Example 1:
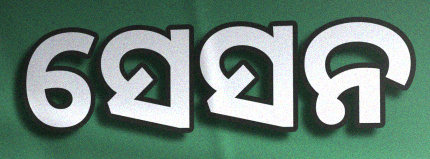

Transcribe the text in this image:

ସେସନ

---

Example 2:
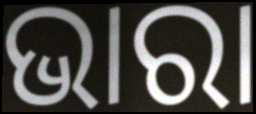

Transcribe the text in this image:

ଭାରା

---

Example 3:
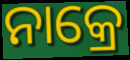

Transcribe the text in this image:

ନାକ୍ରେ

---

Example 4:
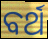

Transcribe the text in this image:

ବର୍ଥ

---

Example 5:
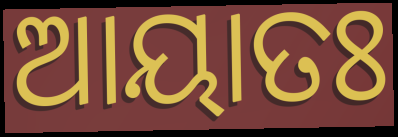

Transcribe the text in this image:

ଆୟାତଃ